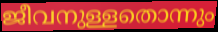
ജീവനുള്ളതൊന്നും